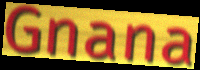
Gnana